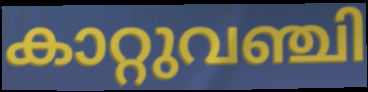
കാറ്റുവഞ്ചി